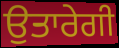
ਉਤਾਰੇਗੀ